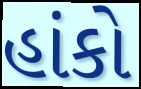
હાંકો